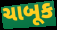
ચાબૂક